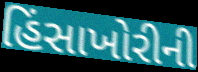
હિંસાખોરીની